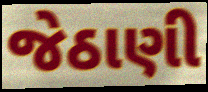
જેઠાણી